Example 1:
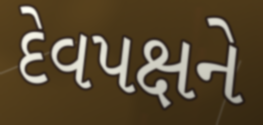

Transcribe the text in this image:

દેવપક્ષને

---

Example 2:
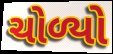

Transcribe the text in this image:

ચોળ્યો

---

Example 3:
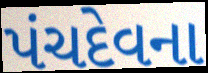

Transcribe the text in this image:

પંચદેવના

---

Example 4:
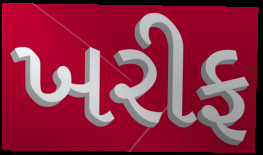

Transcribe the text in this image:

ખરીફ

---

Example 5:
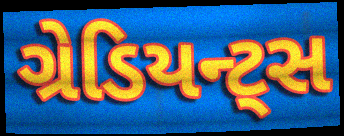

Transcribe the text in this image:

ગ્રેડિયન્ટ્સ